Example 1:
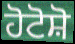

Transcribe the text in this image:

ਹੋਟੋਸ਼ੋ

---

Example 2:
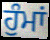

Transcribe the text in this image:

ਹੁੰਮਾਂ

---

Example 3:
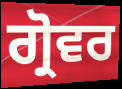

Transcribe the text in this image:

ਗ੍ਰੋਵਰ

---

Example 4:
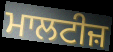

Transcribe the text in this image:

ਮਾਲਟੀਜ਼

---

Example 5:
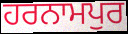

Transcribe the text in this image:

ਹਰਨਾਮਪੁਰ